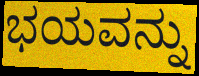
ಭಯವನ್ನು